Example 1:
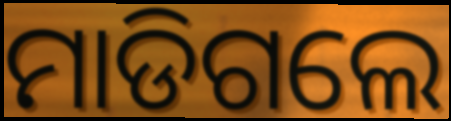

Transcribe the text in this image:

ମାଡିଗଲେ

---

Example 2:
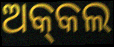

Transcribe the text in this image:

ଅକ୍‍କଲ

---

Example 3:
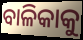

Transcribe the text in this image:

ବାଳିକାକୁ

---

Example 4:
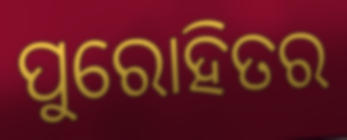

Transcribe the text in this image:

ପୁରୋହିତର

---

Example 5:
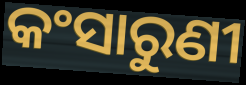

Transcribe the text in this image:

କଂସାରୁଣୀ